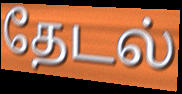
தேடல்